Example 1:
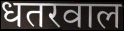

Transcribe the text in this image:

धतरवाल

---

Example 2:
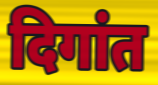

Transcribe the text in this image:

दिगांत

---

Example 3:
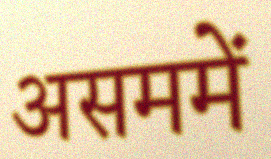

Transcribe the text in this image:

असममें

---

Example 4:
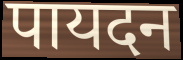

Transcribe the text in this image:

पायदन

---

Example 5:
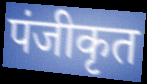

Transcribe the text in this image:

पंजीकृत